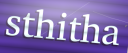
sthitha